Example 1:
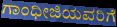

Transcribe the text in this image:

ಗಾಂಧೀಜಿಯವರಿಗೆ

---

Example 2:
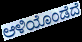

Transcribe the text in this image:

ಆಳಿಯೊಂಡೆದೆ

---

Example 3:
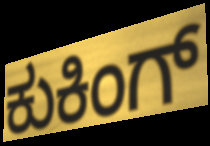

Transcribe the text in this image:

ಕುಕಿಂಗ್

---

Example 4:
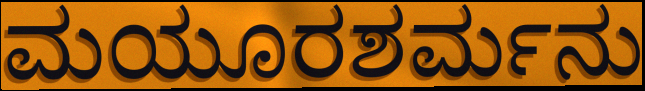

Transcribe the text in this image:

ಮಯೂರಶರ್ಮನು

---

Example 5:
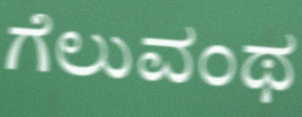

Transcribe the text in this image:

ಗೆಲುವಂಥ